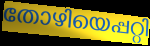
തോഴിയെപ്പറ്റി